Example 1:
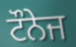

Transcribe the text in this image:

ਟੌਨੇਜ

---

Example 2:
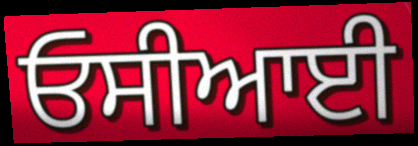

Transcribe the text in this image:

ਓਸੀਆਈ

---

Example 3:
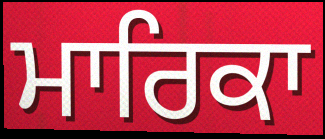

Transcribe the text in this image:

ਮਾਰਿਕਾ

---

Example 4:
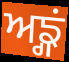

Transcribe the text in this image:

ਅਙ੍ਗਂ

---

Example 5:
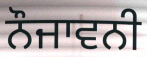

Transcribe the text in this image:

ਨੌਜਾਵਨੀ